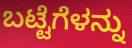
ಬಟ್ಟೆಗೆಳನ್ನು